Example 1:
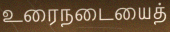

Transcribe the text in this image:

உரைநடையைத்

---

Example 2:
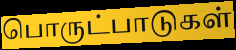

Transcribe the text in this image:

பொருட்பாடுகள்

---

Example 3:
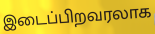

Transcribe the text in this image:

இடைப்பிறவரலாக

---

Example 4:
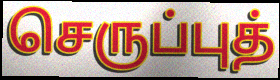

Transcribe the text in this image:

செருப்புத்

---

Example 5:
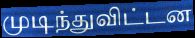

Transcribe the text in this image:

முடிந்துவிட்டன